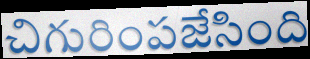
చిగురింపజేసింది